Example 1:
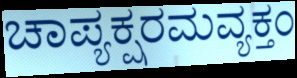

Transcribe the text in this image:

ಚಾಪ್ಯಕ್ಷರಮವ್ಯಕ್ತಂ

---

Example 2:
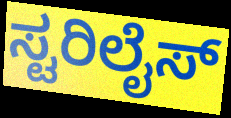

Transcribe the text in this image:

ಸ್ಟರಿಲೈಸ್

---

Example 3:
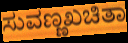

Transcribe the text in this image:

ಸುವಣ್ಣಖಚಿತಾ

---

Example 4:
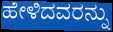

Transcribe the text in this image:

ಹೇಳಿದವರನ್ನು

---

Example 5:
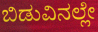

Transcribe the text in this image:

ಬಿಡುವಿನಲ್ಲೇ